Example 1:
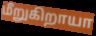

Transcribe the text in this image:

மீறுகிறாயா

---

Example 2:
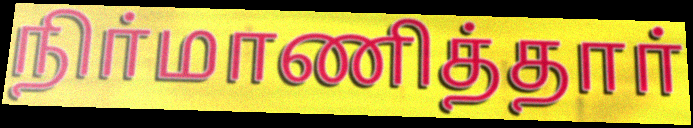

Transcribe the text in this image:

நிர்மாணித்தார்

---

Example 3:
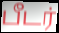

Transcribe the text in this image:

பீடர்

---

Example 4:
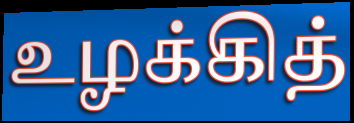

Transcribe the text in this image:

உழக்கித்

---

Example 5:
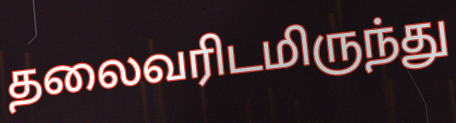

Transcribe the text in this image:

தலைவரிடமிருந்து